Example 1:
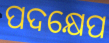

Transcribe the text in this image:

ପଦକ୍ଷେପ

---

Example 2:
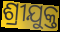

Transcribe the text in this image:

ଶ୍ରୀଯୁକ୍ତ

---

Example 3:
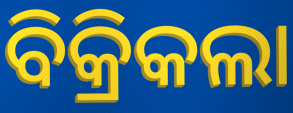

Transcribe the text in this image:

ବିକ୍ରିକଲା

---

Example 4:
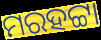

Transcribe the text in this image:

ମରହଟ୍ଟା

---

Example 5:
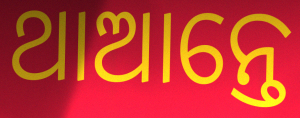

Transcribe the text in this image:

ଥାଆନ୍ତେ